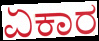
ಏಕಾರ